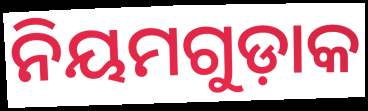
ନିୟମଗୁଡ଼ାକ